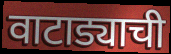
वाटाड्याची